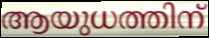
ആയുധത്തിന്